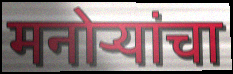
मनोर्‍यांचा